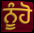
ਨੂੰਹੋ